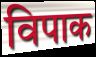
विपाक